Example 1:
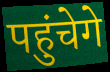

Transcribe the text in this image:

पहुंचेगे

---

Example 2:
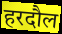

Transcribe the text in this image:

हरदौल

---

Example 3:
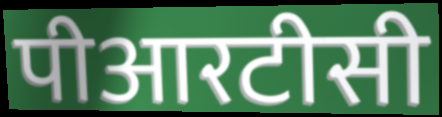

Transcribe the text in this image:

पीआरटीसी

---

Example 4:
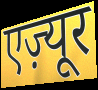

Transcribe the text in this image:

एज़्यूर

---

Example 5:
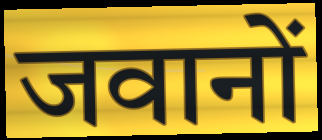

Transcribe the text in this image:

जवानों